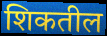
शिकतील